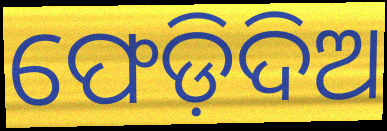
ଫେଡ଼ିଦିଅ